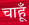
चाहूँ